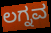
ಲಗ್ನವ